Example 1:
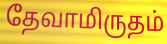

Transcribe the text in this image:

தேவாமிருதம்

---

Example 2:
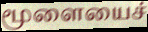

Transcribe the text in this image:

மூளையைச்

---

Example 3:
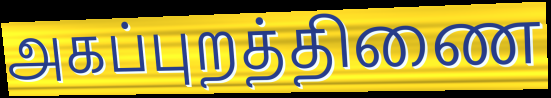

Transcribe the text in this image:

அகப்புறத்திணை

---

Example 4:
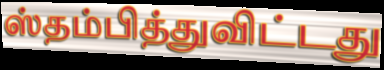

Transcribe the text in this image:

ஸ்தம்பித்துவிட்டது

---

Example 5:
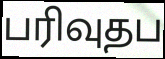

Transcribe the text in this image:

பரிவுதப